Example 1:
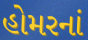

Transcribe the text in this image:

હોમરનાં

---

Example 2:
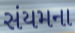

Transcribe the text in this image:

સંયમના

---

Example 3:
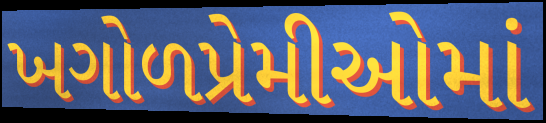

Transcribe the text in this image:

ખગોળપ્રેમીઓમાં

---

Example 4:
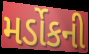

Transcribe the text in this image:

મર્ડોકની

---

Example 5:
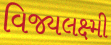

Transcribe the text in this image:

વિજ્યલક્ષ્મી